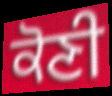
ਕੋਣੀ